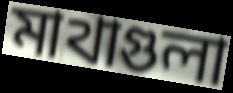
মাথাগুলা